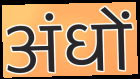
अंधों